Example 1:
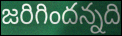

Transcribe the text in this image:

జరిగిందన్నది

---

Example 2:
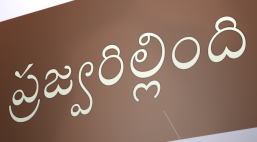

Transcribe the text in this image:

ప్రజ్వరిల్లింది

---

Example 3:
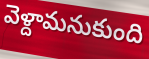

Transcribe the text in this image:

వెళ్దామనుకుంది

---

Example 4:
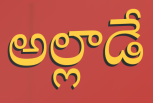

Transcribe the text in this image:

అల్లాడే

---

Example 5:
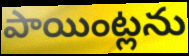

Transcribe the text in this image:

పాయింట్లను